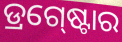
ଡ୍ରଗ୍‍ଷ୍ଟୋର